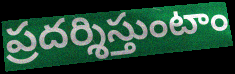
ప్రదర్శిస్తుంటాం